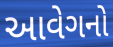
આવેગનો